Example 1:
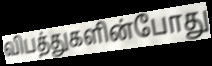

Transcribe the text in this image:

விபத்துகளின்போது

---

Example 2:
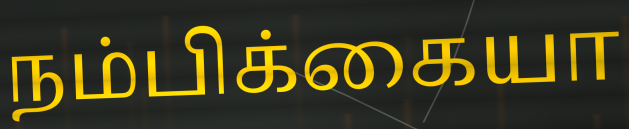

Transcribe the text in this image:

நம்பிக்கையா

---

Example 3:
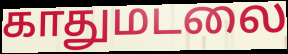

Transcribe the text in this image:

காதுமடலை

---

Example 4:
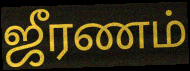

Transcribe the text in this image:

ஜீரணம்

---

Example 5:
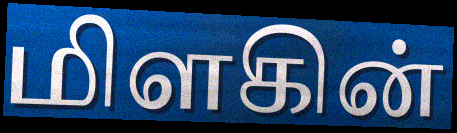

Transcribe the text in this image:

மிளகின்